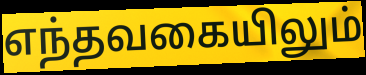
எந்தவகையிலும்